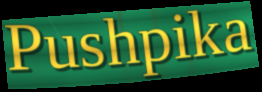
Pushpika